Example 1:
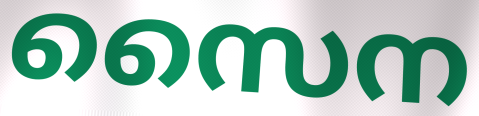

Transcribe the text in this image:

സൈന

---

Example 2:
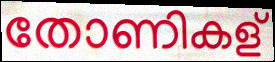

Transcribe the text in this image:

തോണികള്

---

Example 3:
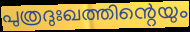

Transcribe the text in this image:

പുത്രദുഃഖത്തിന്റെയും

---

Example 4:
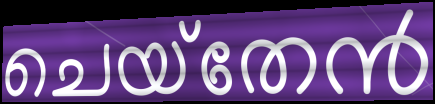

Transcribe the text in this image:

ചെയ്‌തേൻ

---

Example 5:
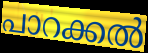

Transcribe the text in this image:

പാറക്കൽ